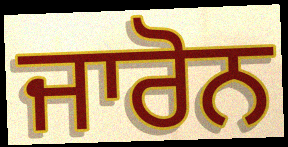
ਜਾਰੋਨ